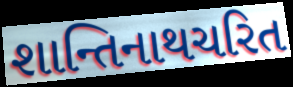
શાન્તિનાથચરિત